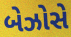
બેઝોસે